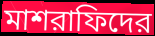
মাশরাফিদের